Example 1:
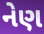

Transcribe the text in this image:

નેણ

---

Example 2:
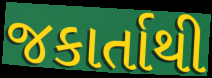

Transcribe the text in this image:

જકાર્તાથી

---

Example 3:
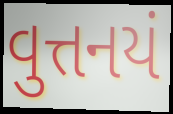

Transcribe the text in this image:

વુત્તનયં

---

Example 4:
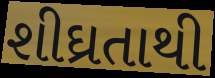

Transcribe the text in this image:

શીઘ્રતાથી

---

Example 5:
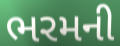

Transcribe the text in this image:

ભરમની